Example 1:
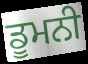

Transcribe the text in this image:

ਡੂਮਨੀ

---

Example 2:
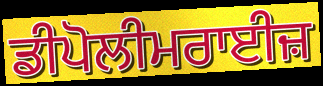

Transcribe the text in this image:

ਡੀਪੋਲੀਮਰਾਈਜ਼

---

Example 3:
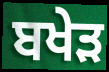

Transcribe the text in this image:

ਬਖੇੜ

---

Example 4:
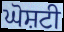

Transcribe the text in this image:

ਘੋਸ਼ਟੀ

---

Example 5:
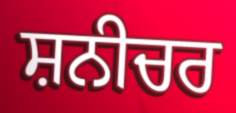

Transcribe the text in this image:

ਸ਼ਨੀਚਰ